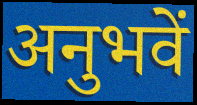
अनुभवें